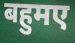
बहुमए